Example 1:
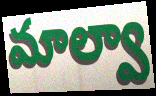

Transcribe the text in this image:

మాల్వా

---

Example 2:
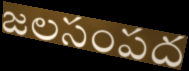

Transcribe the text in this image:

జలసంపద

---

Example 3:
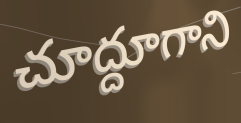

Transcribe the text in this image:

చూద్దూగాని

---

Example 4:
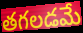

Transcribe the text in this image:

తగలడమే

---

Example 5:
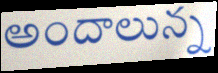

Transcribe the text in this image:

అందాలున్న